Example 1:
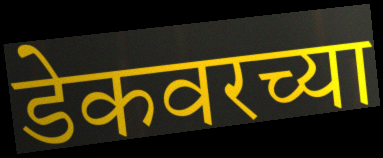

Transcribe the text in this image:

डेकवरच्या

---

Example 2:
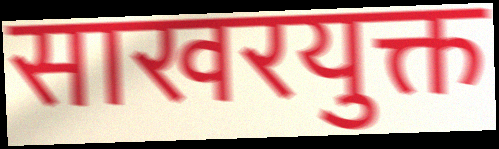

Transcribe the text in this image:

साखरयुक्त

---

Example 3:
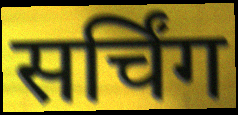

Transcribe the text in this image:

सर्चिंग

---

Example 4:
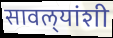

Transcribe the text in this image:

सावल्यांशी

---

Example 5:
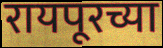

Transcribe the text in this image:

रायपूरच्या